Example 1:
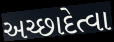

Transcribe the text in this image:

અચ્છાદેત્વા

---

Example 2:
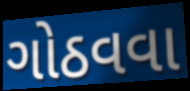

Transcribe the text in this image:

ગોઠવવા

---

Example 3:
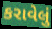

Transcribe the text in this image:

કરાવેલું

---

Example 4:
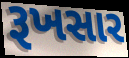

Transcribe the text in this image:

રૂખસાર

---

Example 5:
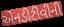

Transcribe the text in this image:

એનડીટીવીની